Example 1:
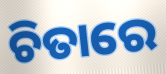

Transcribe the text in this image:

ଚିତାରେ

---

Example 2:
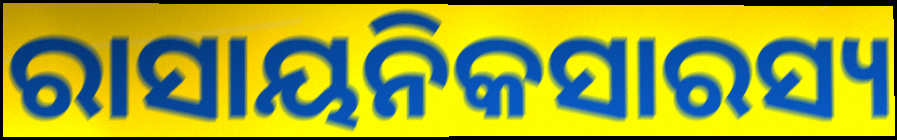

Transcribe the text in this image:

ରାସାୟନିକସାରସ୍ୟ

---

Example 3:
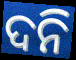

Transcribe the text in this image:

ଦନି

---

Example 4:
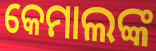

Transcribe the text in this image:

କେମାଲଙ୍କ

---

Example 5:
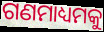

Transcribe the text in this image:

ଗଣମାଧ୍ୟମକୁ